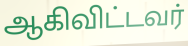
ஆகிவிட்டவர்